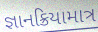
જ્ઞાનક્રિયામાત્ર